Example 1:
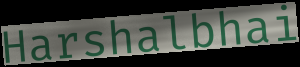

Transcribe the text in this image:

Harshalbhai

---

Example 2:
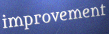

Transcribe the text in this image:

improvement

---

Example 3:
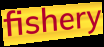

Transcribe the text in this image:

fishery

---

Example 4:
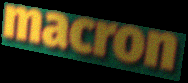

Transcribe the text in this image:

macron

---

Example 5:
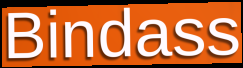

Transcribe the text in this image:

Bindass